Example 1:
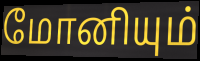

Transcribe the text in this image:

மோனியும்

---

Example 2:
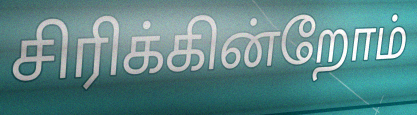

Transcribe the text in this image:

சிரிக்கின்றோம்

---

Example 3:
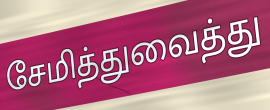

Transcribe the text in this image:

சேமித்துவைத்து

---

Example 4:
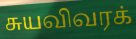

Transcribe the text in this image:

சுயவிவரக்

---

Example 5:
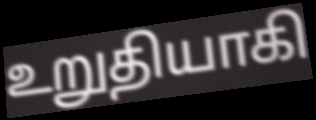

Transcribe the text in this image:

உறுதியாகி